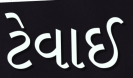
ટેવાઈ